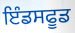
ਇੰਡਸਫੂਡ